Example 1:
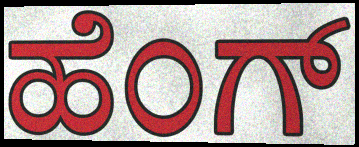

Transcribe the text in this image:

ಹೆಂಗ್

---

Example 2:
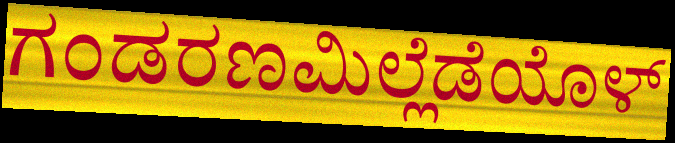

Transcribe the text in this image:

ಗಂಡರಣಮಿಲ್ಲೆಡೆಯೊಳ್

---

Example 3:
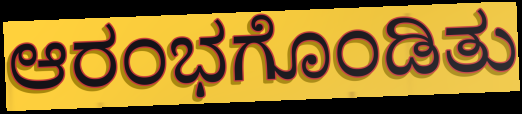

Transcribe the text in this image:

ಆರಂಭಗೊಂಡಿತು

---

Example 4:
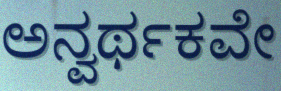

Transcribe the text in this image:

ಅನ್ವರ್ಥಕವೇ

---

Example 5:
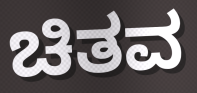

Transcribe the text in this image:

ಚಿತವ